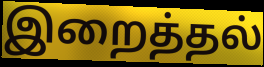
இறைத்தல்